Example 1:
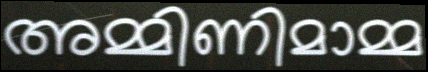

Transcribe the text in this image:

അമ്മിണിമാമ്മ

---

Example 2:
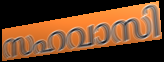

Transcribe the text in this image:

സഹവാസി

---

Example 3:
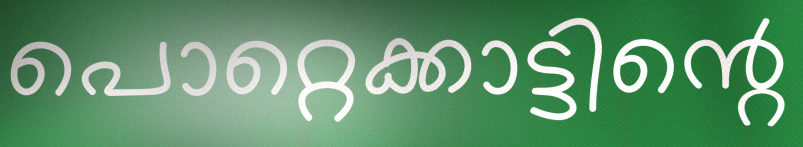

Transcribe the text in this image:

പൊറ്റെക്കാട്ടിന്റെ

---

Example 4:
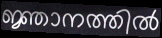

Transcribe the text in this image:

ജ്ഞാനത്തിൽ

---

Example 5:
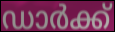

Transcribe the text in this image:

ഡാർക്ക്